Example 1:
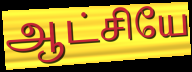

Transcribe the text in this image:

ஆட்சியே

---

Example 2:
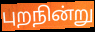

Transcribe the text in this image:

புறநின்று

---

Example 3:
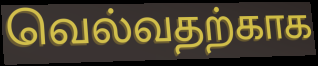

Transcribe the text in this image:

வெல்வதற்காக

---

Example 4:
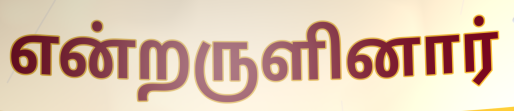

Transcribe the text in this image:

என்றருளினார்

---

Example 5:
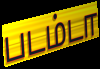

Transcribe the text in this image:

படம்டா